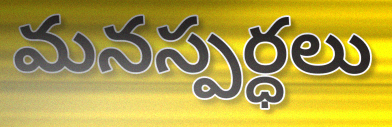
మనస్పర్ధలు